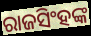
ରାଜସିଂହଙ୍କ